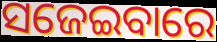
ସଜେଇବାରେ